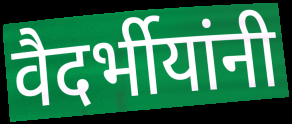
वैदर्भीयांनी